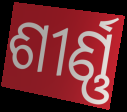
ଶୀର୍ଣ୍ଣ